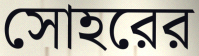
সোহরের